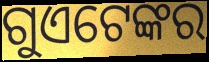
ଗୁଏଟେଙ୍କର